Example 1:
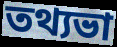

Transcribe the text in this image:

তথ্যভা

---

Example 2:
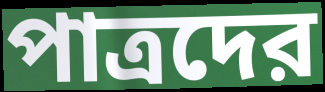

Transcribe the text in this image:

পাত্রদের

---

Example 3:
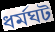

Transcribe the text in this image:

ধর্মঘট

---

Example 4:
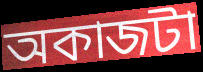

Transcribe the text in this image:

অকাজটা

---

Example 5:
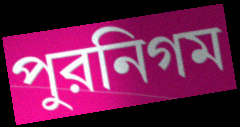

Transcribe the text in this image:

পুরনিগম